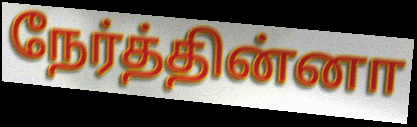
நேர்த்தின்னா